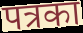
पत्रका